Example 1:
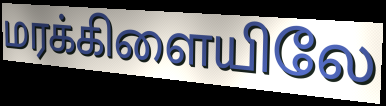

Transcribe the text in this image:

மரக்கிளையிலே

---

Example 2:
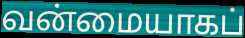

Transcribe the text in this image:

வன்மையாகப்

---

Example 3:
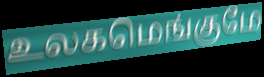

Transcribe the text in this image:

உலகமெங்குமே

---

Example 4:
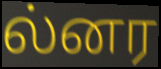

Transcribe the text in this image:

ல்னர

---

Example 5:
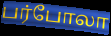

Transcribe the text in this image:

பர்போலா